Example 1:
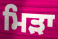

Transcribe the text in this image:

ਮਿੜਾ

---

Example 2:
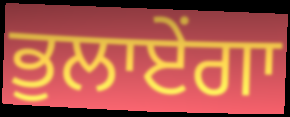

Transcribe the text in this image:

ਭੁਲਾਏਂਗਾ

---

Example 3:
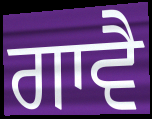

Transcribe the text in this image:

ਗਾਵੈ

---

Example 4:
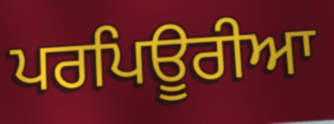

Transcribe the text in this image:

ਪਰਪਿਊਰੀਆ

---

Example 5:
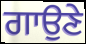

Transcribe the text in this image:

ਗਾਉਣੇ